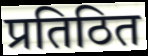
प्रतिठित